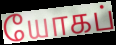
யோகப்